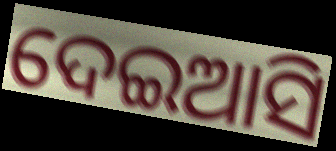
ଦେଇଆସି